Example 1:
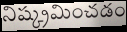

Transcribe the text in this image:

నిష్క్రమించడం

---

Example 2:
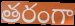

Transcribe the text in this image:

తరంగా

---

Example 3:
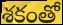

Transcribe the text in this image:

శకంతో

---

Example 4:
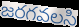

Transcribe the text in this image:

జరగవలసి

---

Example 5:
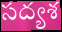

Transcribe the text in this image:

సద్యశ